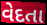
વેદતા